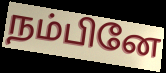
நம்பினே